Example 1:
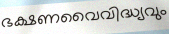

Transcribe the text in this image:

ഭക്ഷണവൈവിദ്ധ്യവും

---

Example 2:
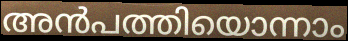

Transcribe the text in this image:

അൻപത്തിയൊന്നാം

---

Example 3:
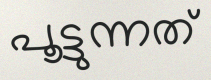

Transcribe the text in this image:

പൂട്ടുന്നത്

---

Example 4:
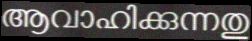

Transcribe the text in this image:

ആവാഹിക്കുന്നതു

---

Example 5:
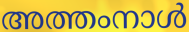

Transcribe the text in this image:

അത്തംനാൾ